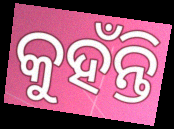
କୁହଁନ୍ତି